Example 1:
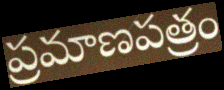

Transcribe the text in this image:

ప్రమాణపత్రం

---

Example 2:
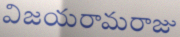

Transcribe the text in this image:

విజయరామరాజు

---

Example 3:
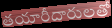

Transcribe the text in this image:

తయారీదారులతో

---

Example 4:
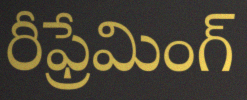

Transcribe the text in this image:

రీఫ్రేమింగ్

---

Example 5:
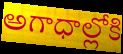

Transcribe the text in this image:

అగాధాల్లోకి